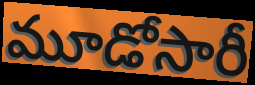
మూడోసారీ